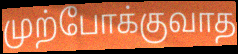
முற்போக்குவாத